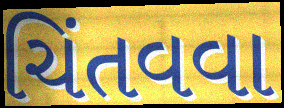
ચિંતવવા